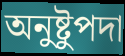
অনুষ্টুপদা